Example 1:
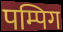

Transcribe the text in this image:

पम्पिग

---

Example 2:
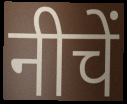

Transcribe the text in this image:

नीचें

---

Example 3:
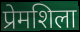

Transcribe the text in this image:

प्रेमशिला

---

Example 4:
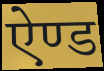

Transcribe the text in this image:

ऐण्ड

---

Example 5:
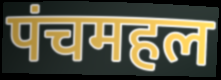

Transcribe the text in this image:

पंचमहल